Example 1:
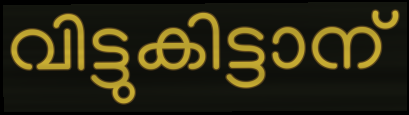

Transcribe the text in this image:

വിട്ടുകിട്ടാന്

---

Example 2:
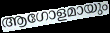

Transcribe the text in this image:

ആഗോളമായും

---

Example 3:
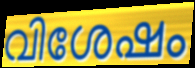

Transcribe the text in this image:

വിശേഷം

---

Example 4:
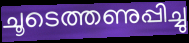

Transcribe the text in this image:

ചൂടെത്തണുപ്പിച്ചു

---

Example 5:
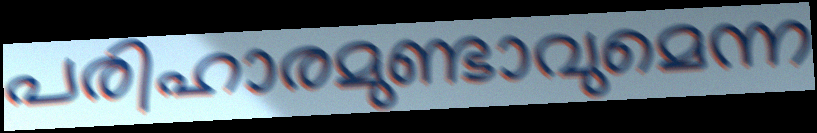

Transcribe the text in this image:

പരിഹാരമുണ്ടാവുമെന്ന